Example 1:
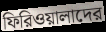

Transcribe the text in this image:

ফিরিওয়ালাদের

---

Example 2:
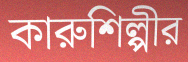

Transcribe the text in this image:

কারুশিল্পীর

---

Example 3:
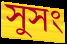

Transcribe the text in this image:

সুসং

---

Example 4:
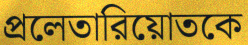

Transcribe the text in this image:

প্রলেতারিয়োতকে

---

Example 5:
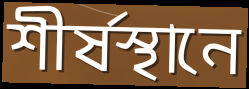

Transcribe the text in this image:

শীর্ষস্থানে